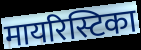
मायरिस्टिका